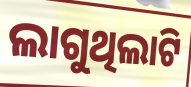
ଲାଗୁଥିଲାଟି